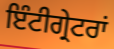
ਇੰਟੀਗ੍ਰੇਟਰਾਂ